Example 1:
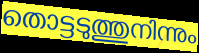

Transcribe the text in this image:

തൊട്ടടുത്തുനിന്നും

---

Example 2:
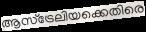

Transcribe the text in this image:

ആസ്ട്രേലിയക്കെതിരെ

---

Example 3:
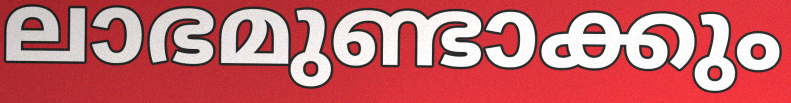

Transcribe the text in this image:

ലാഭമുണ്ടാക്കും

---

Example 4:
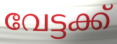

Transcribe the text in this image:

വേട്ടക്ക്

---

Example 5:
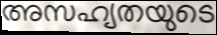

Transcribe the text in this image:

അസഹ്യതയുടെ